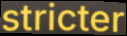
stricter